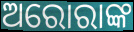
ଅରୋରାଙ୍କ